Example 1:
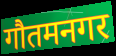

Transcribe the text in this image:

गौतमनगर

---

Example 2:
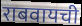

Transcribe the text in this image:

राबवायची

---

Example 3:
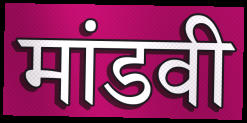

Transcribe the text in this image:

मांडवी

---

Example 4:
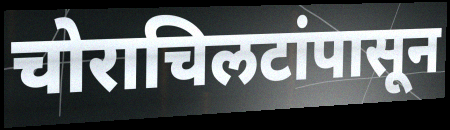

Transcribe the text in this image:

चोराचिलटांपासून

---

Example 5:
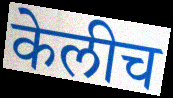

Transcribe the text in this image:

केलीच